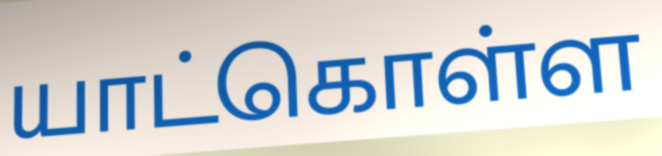
யாட்கொள்ள